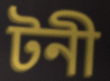
টনী